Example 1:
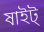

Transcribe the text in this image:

ষাইট্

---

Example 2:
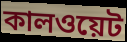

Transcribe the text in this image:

কালওয়েট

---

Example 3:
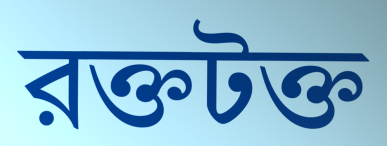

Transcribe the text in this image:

রক্তটক্ত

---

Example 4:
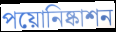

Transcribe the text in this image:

পয়োনিষ্কাশন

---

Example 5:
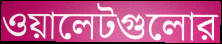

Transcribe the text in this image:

ওয়ালেটগুলোর